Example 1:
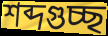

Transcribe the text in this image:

শব্দগুচ্ছ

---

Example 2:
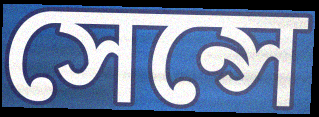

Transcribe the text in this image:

সেন্সে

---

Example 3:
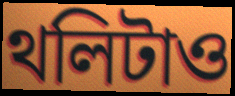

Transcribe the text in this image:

থলিটাও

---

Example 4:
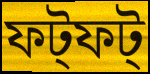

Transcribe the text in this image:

ফট্ফট্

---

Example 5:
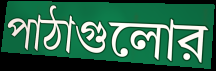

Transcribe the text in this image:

পাঠাগুলোর